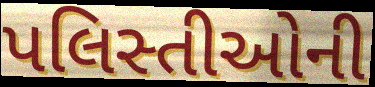
પલિસ્તીઓની